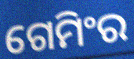
ଗେମିଂର